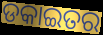
ଡକାଇତର